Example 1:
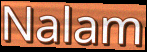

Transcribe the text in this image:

Nalam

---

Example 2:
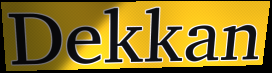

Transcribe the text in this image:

Dekkan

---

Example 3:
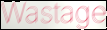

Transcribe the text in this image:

Wastage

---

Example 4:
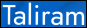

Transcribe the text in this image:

Taliram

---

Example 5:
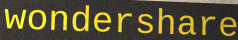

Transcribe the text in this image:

wondershare